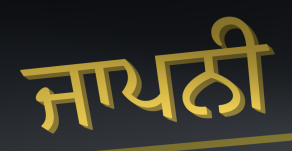
ਜਾਪਨੀ